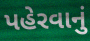
પહેરવાનું